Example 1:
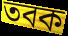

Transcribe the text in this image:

তবক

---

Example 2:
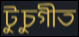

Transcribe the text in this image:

টুচুগীত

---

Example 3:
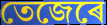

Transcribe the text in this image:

তেজেৰে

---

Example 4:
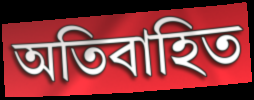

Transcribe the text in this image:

অতিবাহিত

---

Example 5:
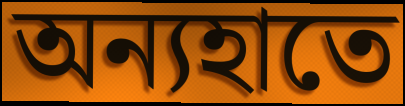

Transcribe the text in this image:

অন্যহাতে